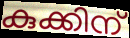
കുക്കിന്